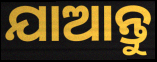
ଯାଆନ୍ତୁ